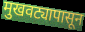
मुखवट्यापासून